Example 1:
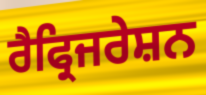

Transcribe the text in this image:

ਰੈਫ੍ਰਿਜਰੇਸ਼ਨ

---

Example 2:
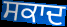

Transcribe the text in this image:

ਸਕਾਦ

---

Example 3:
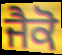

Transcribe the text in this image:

ਜੈਕੋ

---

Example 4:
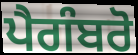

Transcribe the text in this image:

ਪੈਗੰਬਰੋ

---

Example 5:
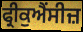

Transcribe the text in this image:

ਫ੍ਰੀਕੁਐਂਸੀਜ਼